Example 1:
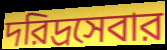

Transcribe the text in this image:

দরিদ্রসেবার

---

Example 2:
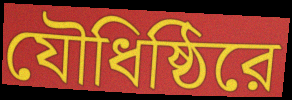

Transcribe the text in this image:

যৌধিষ্ঠিরে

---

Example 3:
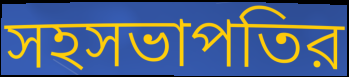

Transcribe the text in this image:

সহসভাপতির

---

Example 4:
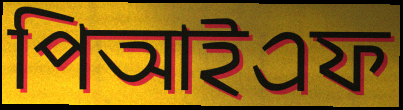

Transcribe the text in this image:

পিআইএফ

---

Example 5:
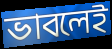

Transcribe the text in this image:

ভাবলেই